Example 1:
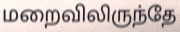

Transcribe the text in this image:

மறைவிலிருந்தே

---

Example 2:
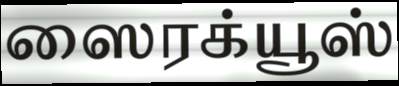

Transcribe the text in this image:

ஸைரக்யூஸ்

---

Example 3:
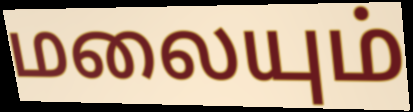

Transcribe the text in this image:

மலையும்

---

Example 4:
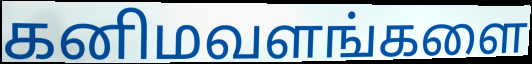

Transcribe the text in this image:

கனிமவளங்களை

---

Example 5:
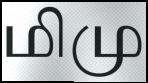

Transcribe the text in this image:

மிமு